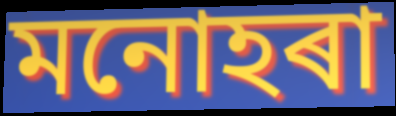
মনোহৰা